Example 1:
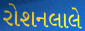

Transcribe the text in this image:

રોશનલાલે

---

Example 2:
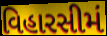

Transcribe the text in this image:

વિહારસીમં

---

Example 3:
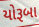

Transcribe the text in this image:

યોરૂબા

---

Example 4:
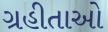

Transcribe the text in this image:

ગ્રહીતાઓ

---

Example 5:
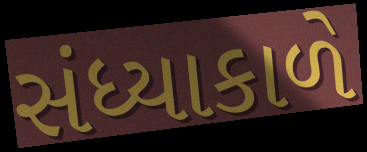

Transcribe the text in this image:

સંધ્યાકાળે